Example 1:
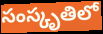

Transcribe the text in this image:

సంస్కృతిలో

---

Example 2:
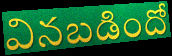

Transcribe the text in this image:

వినబడిందో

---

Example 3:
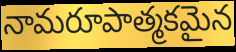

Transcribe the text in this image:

నామరూపాత్మకమైన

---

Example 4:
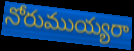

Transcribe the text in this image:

నోరుముయ్యరా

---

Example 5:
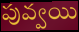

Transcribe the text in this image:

పువ్వయి